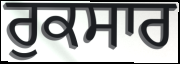
ਰੁਕਸਾਰ